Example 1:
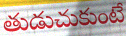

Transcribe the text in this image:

తుడుచుకుంటే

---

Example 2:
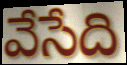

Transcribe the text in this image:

వేసేది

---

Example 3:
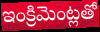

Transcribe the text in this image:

ఇంక్రిమెంట్లతో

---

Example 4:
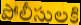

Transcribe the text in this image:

పోలీసులకి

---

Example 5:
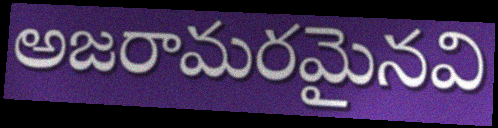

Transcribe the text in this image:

అజరామరమైనవి